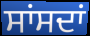
ਸਾਂਸਦਾਂ